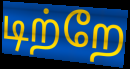
டிற்றே